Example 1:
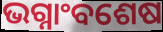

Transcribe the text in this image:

ଭଗ୍ନାଂବଶେଷ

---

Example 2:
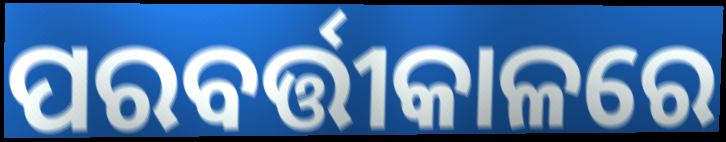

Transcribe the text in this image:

ପରବର୍ତ୍ତୀକାଳରେ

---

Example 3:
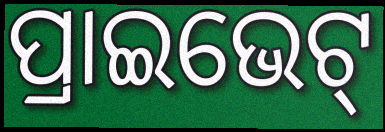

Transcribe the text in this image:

ପ୍ରାଇଭେଟ୍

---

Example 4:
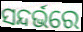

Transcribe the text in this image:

ସନ୍ଦର୍ଭରେ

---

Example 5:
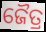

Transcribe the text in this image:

ଜୈତ୍ର